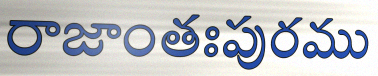
రాజాంతఃపురము